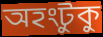
অহংটুকু